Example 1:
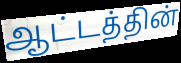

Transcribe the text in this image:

ஆட்டத்தின்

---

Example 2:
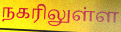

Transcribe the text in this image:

நகரிலுள்ள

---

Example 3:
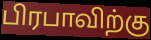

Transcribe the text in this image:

பிரபாவிற்கு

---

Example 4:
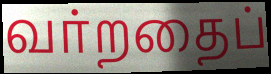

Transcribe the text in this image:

வர்றதைப்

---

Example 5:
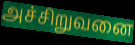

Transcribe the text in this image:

அச்சிறுவனை